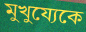
মুখুয্যেকে